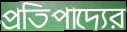
প্রতিপাদ্যের